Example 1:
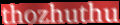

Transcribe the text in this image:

thozhuthu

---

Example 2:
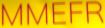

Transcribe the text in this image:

MMEFR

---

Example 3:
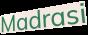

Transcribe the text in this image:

Madrasi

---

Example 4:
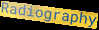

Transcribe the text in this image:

Radiography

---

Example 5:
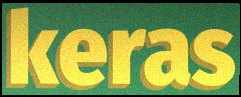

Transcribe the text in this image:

keras